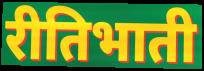
रीतिभाती